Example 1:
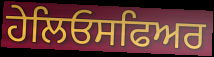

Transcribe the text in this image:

ਹੇਲਿਓਸਫਿਅਰ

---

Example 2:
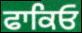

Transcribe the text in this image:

ਫਾਕਿਓ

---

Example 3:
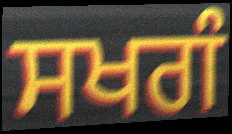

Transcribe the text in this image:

ਸਖਗੰ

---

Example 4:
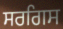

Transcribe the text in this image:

ਸਰਗਿਸ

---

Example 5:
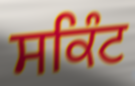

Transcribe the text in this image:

ਸਕਿੰਟ